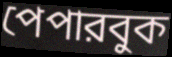
পেপারবুক